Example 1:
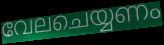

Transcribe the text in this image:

വേലചെയ്യണം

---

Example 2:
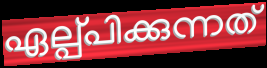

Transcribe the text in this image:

ഏല്പ്പിക്കുന്നത്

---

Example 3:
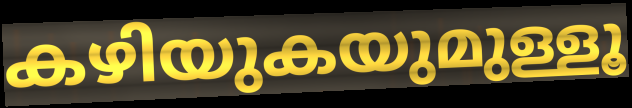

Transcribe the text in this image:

കഴിയുകയുമുള്ളൂ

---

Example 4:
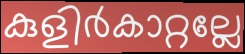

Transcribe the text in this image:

കുളിർകാറ്റല്ലേ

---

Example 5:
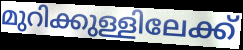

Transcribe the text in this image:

മുറിക്കുള്ളിലേക്ക്